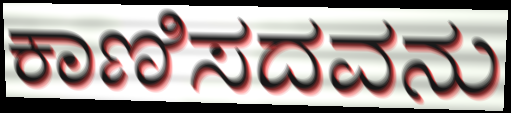
ಕಾಣಿಸದವನು